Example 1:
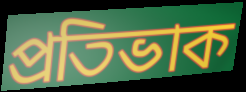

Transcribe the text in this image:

প্ৰতিভাক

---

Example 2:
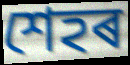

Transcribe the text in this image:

শেহৰ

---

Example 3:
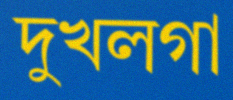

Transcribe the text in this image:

দুখলগা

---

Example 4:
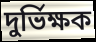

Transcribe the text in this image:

দুৰ্ভিক্ষক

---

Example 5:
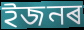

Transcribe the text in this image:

ইজনৰ